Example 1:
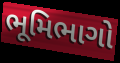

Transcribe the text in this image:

ભૂમિભાગો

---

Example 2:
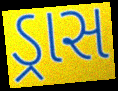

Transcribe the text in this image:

ડ્રાસ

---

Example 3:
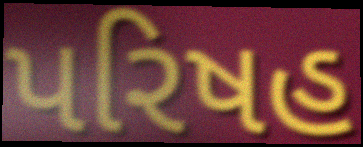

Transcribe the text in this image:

પરિષહ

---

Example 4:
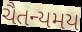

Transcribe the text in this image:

ચૈતન્યમય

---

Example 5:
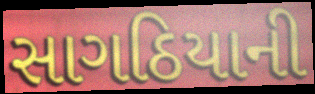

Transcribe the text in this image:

સાગઠિયાની